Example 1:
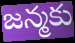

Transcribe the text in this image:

జన్మకు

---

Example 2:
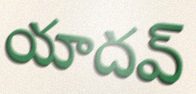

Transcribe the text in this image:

యాదవ్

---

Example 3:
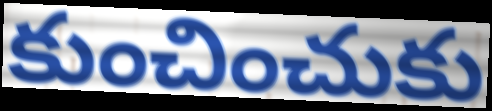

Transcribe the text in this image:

కుంచించుకు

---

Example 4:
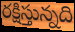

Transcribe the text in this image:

రక్షిస్తున్నది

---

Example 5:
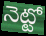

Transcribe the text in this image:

నెట్టో